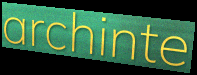
archinte